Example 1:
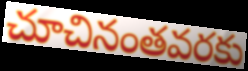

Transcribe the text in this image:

చూచినంతవరకు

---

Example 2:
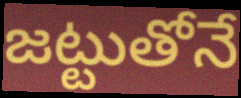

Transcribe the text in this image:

జట్టుతోనే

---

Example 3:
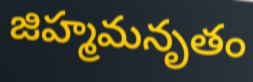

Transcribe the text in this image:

జిహ్మమనృతం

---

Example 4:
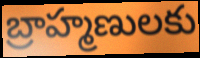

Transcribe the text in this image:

బ్రాహ్మణులకు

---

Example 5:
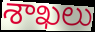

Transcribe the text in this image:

శాఖలు